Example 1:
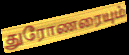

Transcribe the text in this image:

துரோணரையும்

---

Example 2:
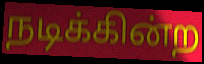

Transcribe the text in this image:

நடிக்கின்ற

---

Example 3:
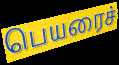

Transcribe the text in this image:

பெயரைச்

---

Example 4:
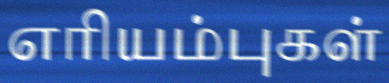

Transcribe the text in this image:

எரியம்புகள்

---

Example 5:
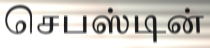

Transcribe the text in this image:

செபஸ்டின்